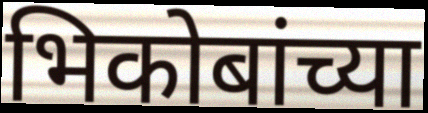
भिकोबांच्या